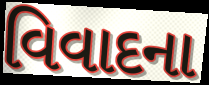
વિવાદના